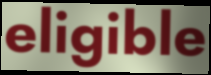
eligible